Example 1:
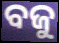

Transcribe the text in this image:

ବଜୁ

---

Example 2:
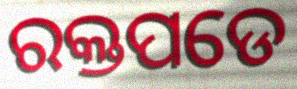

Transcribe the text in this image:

ରକ୍ତପଡେ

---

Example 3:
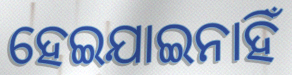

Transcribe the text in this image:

ହେଇଯାଇନାହିଁ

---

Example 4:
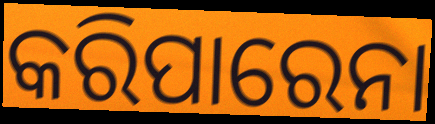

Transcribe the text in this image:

କରିପାରେନା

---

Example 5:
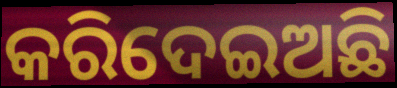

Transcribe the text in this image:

କରିଦେଇଅଛି